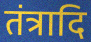
तंत्रादि